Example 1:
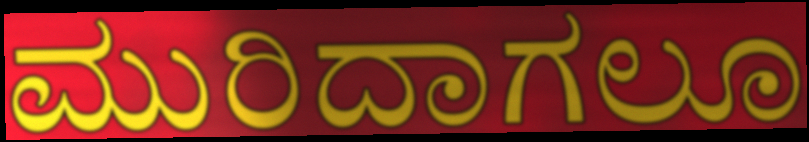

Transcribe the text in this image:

ಮುರಿದಾಗಲೂ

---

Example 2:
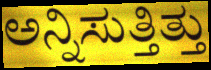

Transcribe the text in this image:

ಅನ್ನಿಸುತ್ತಿತ್ತು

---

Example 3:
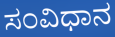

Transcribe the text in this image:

ಸಂವಿಧಾನ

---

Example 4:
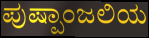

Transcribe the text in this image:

ಪುಷ್ಪಾಂಜಲಿಯ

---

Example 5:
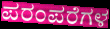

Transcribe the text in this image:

ಪರಂಪರೆಗಳ